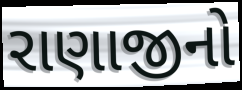
રાણાજીનો